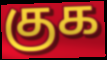
குக